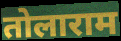
तोलाराम